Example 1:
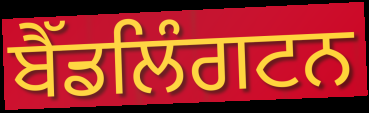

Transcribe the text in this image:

ਬੈੱਡਲਿੰਗਟਨ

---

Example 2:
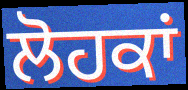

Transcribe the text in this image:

ਲੋਹਕਾਂ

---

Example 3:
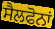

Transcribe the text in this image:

ਸੈਲਫੋਨਾਂ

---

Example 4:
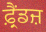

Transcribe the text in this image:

ਫ਼੍ਰੈਂਡਜ਼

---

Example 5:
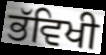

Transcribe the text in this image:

ਭੱਵਿਖੀ